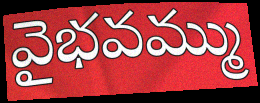
వైభవమ్ము